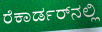
ರೆಕಾರ್ಡರ್‌ನಲ್ಲಿ